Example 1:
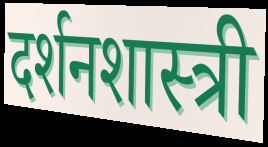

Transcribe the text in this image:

दर्शनशास्त्री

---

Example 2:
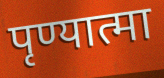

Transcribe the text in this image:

पृण्यात्मा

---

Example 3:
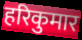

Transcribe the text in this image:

हरिकुमार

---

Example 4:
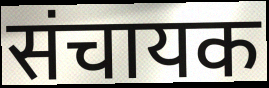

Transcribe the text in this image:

संचायक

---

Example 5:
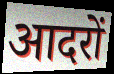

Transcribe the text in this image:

आदरों